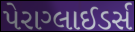
પેરાગ્લાઈડર્સ